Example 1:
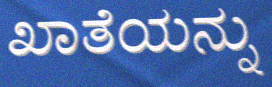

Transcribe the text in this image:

ಖಾತೆಯನ್ನು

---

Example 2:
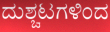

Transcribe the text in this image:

ದುಶ್ಚಟಗಳಿಂದ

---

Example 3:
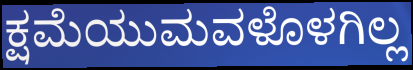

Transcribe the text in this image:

ಕ್ಷಮೆಯುಮವಳೊಳಗಿಲ್ಲ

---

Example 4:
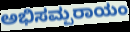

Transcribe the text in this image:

ಅಭಿಸಮ್ಪರಾಯಂ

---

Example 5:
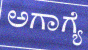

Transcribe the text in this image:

ಅಗಾಗ್ಯೆ